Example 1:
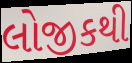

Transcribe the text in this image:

લોજીકથી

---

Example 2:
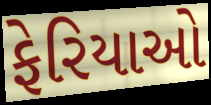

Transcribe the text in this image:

ફેરિયાઓ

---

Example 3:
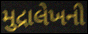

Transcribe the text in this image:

મુદ્રાલેખની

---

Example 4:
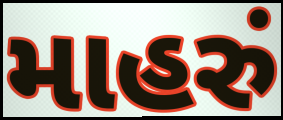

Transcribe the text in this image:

માહરું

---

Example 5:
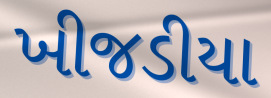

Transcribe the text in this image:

ખીજડીયા